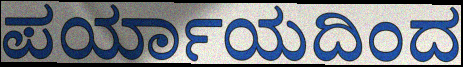
ಪರ್ಯಾಯದಿಂದ